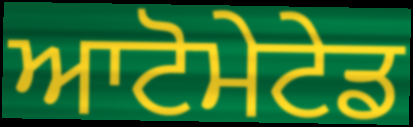
ਆਟੋਮੇਟੇਡ